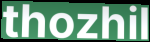
thozhil